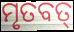
ମୃତବତ୍